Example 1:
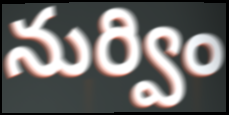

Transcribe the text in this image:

నుర్విం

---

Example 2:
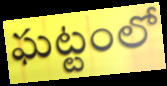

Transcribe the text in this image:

ఘట్టంలో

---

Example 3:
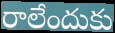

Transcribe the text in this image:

రాలేందుకు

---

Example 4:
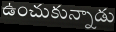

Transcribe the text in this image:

ఉంచుకున్నాడు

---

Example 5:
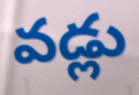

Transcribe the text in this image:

వడ్లు